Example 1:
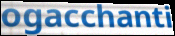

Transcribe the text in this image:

ogacchanti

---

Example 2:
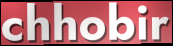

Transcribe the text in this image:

chhobir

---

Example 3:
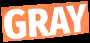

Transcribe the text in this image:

GRAY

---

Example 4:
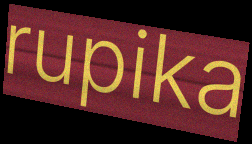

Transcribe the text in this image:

rupika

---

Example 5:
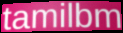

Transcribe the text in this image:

tamilbm